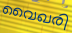
വൈഖരി